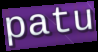
patu